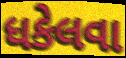
ધકેલવા